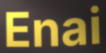
Enai